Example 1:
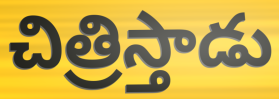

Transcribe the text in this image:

చిత్రిస్తాడు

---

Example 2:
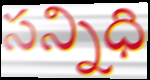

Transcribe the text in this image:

సన్నిధి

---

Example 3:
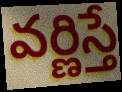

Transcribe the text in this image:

వర్ణిస్తే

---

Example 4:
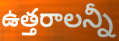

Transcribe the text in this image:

ఉత్తరాలన్నీ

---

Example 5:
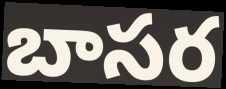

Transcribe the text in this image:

బాసర